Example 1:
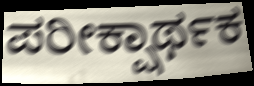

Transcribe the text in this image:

ಪರೀಕ್ಷಾರ್ಥಕ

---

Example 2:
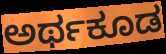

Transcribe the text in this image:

ಅರ್ಥಕೂಡ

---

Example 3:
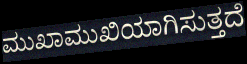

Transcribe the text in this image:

ಮುಖಾಮುಖಿಯಾಗಿಸುತ್ತದೆ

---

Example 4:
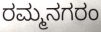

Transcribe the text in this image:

ರಮ್ಮನಗರಂ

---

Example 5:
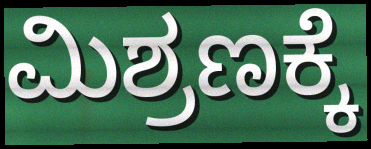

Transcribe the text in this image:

ಮಿಶ್ರಣಕ್ಕೆ